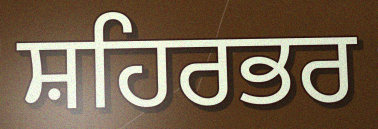
ਸ਼ਹਿਰਭਰ